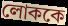
লোককে